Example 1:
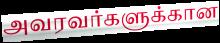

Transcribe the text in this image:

அவரவர்களுக்கான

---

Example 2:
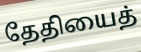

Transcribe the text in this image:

தேதியைத்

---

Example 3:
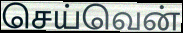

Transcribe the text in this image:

செய்வென்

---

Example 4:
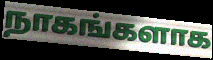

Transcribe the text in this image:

நாகங்களாக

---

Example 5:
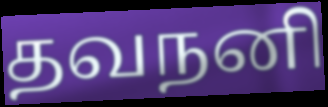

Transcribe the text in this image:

தவநனி